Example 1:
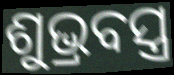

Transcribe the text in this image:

ଶୁଭ୍ରବସ୍ତ୍ର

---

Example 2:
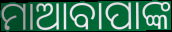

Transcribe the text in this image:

ମାଆବାପାଙ୍କ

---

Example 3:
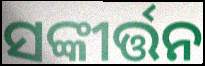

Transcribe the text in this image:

ସଙ୍କୀର୍ତ୍ତନ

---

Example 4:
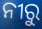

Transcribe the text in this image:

ନୀରୁ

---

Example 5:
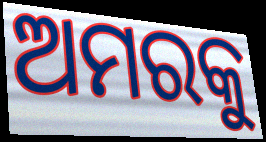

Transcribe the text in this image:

ଅମରକୁ